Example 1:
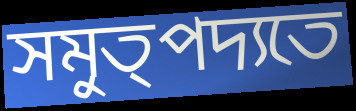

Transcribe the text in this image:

সমুত্পদ্যতে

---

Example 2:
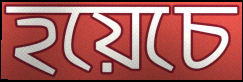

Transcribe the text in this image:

হয়েচে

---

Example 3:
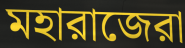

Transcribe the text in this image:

মহারাজেরা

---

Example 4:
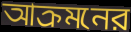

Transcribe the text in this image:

আক্রমনের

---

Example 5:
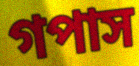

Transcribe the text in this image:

গপাস